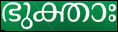
ഭുക്താഃ